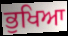
ਭੁਖਿਆ